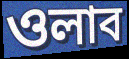
ওলাব